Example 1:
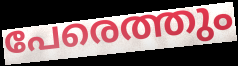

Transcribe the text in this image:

പേരെത്തും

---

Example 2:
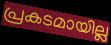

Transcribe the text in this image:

പ്രകടമായില്ല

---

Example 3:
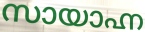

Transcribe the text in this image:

സായാഹ്ന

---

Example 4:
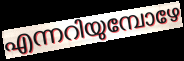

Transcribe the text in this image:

എന്നറിയുമ്പോഴേ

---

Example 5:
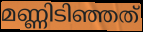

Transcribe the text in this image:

മണ്ണിടിഞ്ഞത്